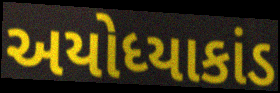
અયોધ્યાકાંડ